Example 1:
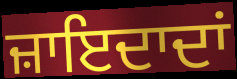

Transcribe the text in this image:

ਜ਼ਾਇਦਾਦਾਂ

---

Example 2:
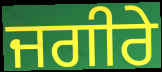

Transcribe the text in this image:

ਜਗੀਰੇ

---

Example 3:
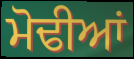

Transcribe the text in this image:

ਮੋਢੀਆਂ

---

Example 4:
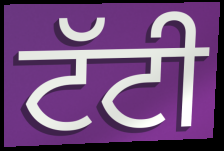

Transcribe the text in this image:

ਟੱਟੀ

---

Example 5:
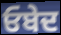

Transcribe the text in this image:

ਓਬੇਦ